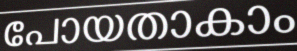
പോയതാകാം